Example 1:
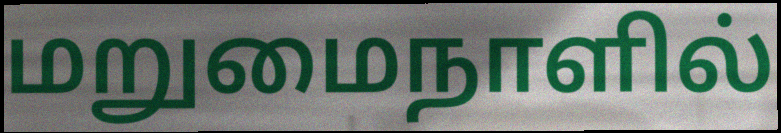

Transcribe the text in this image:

மறுமைநாளில்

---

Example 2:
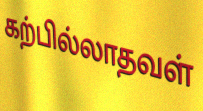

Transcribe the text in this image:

கற்பில்லாதவள்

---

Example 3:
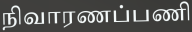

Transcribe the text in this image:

நிவாரணப்பணி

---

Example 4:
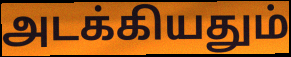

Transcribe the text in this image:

அடக்கியதும்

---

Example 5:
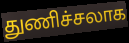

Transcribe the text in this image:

துணிச்சலாக